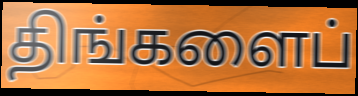
திங்களைப்